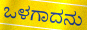
ಒಳಗಾದನು